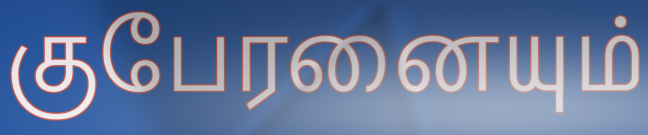
குபேரனையும்